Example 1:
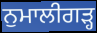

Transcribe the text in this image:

ਨੁਮਾਲੀਗੜ੍ਹ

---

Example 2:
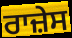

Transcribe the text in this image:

ਰਾਜ਼ੇਸ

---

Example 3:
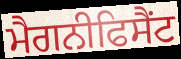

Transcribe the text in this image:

ਮੈਗਨੀਫਿਸੈਂਟ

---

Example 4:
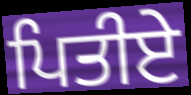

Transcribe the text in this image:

ਪਿਤੀਏ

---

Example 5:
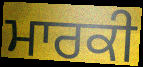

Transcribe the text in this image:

ਮਾਰਕੀ